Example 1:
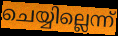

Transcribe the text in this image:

ചെയ്യില്ലെന്ന്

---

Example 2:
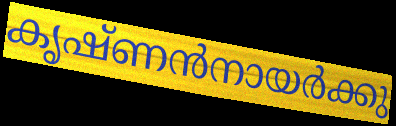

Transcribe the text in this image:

കൃഷ്ണൻനായർക്കു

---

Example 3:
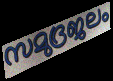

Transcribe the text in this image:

സമുദ്രജലം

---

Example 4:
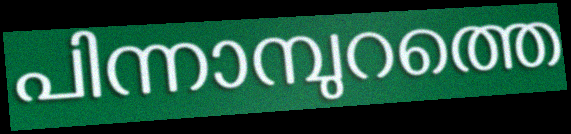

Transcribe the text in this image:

പിന്നാമ്പുറത്തെ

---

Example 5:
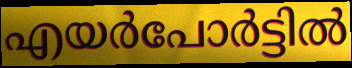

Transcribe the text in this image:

എയർപോർട്ടിൽ